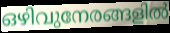
ഒഴിവുനേരങ്ങളിൽ